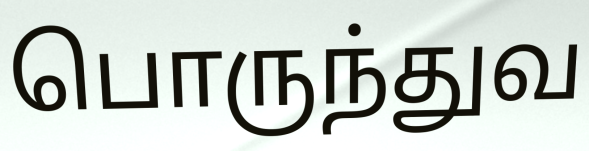
பொருந்துவ